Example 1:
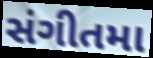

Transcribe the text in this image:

સંગીતમા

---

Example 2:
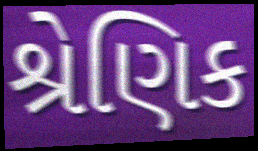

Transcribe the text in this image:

શ્રેણિક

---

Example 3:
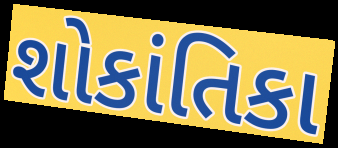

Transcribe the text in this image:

શોકાંતિકા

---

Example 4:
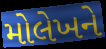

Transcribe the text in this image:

મોલેખને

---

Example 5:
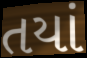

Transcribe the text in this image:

તયાં